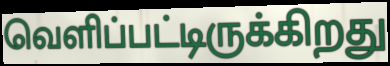
வெளிப்பட்டிருக்கிறது